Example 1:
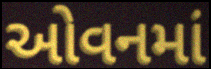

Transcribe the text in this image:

ઓવનમાં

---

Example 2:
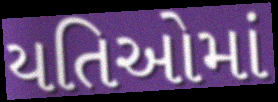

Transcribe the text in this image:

યતિઓમાં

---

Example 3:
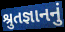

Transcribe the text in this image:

શ્રુતજ્ઞાનનું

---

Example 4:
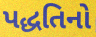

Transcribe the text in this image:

પદ્ધતિનો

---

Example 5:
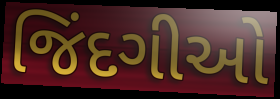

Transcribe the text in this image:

જિંદગીઓ